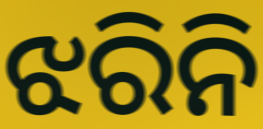
ଝରିନି